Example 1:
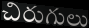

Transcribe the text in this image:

చిరుగులు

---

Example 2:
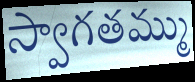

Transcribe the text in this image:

స్వాగతమ్ము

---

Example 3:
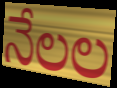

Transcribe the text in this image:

నేలల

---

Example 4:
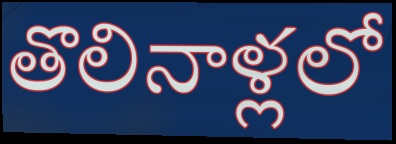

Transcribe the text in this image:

తొలినాళ్లలో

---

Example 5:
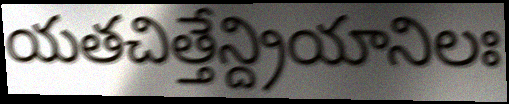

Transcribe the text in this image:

యతచిత్తేన్ద్రియానిలః